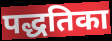
पद्धतिका